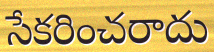
సేకరించరాదు